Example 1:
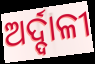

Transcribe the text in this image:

ଅର୍ଦ୍ଦାଳୀ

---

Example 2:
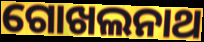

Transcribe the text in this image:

ଗୋଖଲନାଥ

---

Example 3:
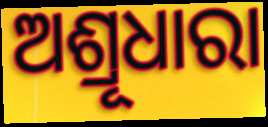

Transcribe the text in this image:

ଅଶ୍ରୂଧାରା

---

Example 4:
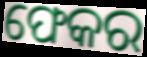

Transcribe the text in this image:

ଫେକର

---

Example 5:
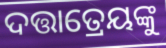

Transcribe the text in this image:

ଦତ୍ତାତ୍ରେୟଙ୍କୁ